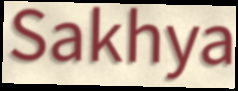
Sakhya